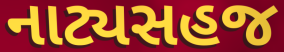
નાટ્યસહજ